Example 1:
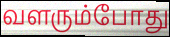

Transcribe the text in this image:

வளரும்போது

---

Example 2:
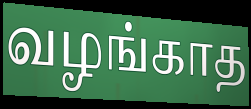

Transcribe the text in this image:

வழங்காத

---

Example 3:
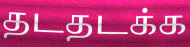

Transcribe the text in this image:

தடதடக்க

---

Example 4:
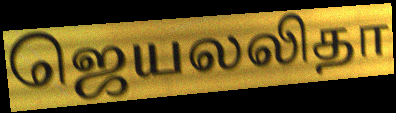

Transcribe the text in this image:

ஜெயலலிதா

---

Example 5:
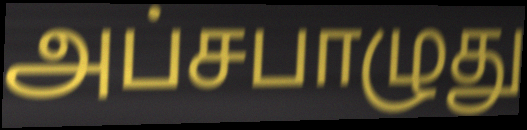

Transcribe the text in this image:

அப்சபாழுது